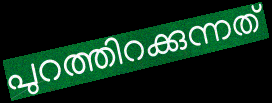
പുറത്തിറക്കുന്നത്